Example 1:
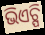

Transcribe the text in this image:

ଭିଏଚ୍ପି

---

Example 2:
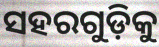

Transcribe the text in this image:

ସହରଗୁଡ଼ିକୁ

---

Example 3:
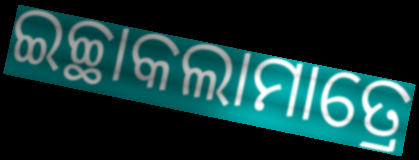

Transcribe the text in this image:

ଇଚ୍ଛାକଲାମାତ୍ରେ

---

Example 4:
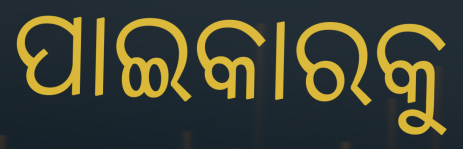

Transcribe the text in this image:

ପାଇକାରକୁ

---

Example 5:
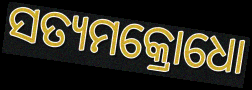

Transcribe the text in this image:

ସତ୍ୟମକ୍ରୋଧୋ